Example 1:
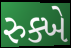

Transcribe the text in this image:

રુક્ખે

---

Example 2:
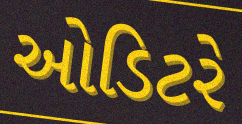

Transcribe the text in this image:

ઓડિટરે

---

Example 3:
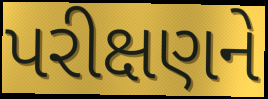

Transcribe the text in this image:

પરીક્ષણને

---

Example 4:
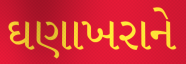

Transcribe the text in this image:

ઘણાખરાને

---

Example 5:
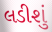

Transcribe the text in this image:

લડીશું